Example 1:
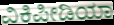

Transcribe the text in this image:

ವಿಕಿಪೀಡಿಯಾ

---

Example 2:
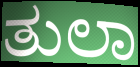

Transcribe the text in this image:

ತುಲಾ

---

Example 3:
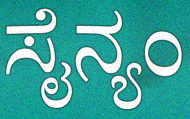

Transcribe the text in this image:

ಸೈನ್ಯಂ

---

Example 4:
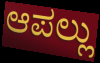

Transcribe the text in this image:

ಆಪಲ್ಲು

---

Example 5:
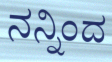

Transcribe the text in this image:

ನನ್ನಿಂದ